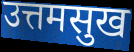
उत्तमसुख